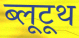
ब्‍लूटूथ